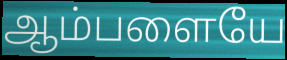
ஆம்பளையே